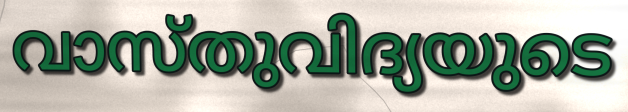
വാസ്തുവിദ്യയുടെ